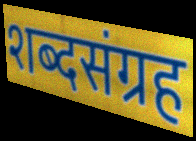
शब्दसंग्रह